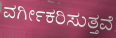
ವರ್ಗೀಕರಿಸುತ್ತವೆ